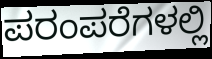
ಪರಂಪರೆಗಳಲ್ಲಿ